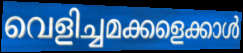
വെളിച്ചമക്കളെക്കാൾ